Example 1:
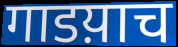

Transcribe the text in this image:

गाडय़ाच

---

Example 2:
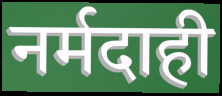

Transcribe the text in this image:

नर्मदाही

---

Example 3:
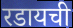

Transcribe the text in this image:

रडायची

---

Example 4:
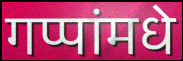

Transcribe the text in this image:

गप्पांमधे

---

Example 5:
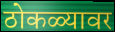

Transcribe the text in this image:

ठोकळ्यावर